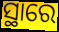
ସ୍ଥାରେ